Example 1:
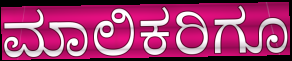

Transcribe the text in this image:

ಮಾಲಿಕರಿಗೂ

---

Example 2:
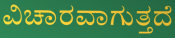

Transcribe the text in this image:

ವಿಚಾರವಾಗುತ್ತದೆ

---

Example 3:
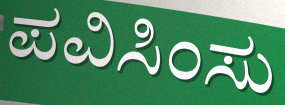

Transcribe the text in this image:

ಪವಿಸಿಂಸು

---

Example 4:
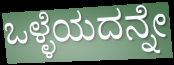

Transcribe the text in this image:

ಒಳ್ಳೆಯದನ್ನೇ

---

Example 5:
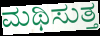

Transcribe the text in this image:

ಮಥಿಸುತ್ತ